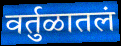
वर्तुळातलं